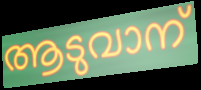
ആടുവാന്